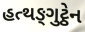
હત્થઙ્ગુટ્ઠેન